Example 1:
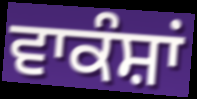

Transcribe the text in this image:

ਵਾਕੰਸ਼ਾਂ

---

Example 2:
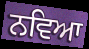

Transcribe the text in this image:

ਨਵਿਆ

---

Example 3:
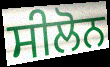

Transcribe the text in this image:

ਸੀਲੋਨ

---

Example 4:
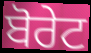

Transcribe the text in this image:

ਬੋਰੇਟ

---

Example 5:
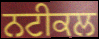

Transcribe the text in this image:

ਨਟੀਕਲ